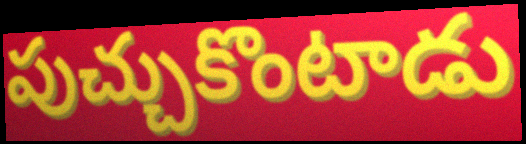
పుచ్చుకొంటాడు